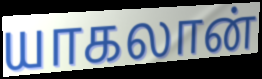
யாகலான்